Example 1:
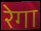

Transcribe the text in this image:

रेगा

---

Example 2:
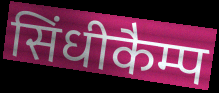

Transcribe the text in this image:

सिंधीकैम्प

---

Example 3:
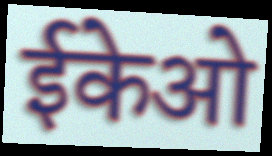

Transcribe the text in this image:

ईकेओ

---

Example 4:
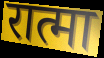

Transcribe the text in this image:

रात्मा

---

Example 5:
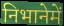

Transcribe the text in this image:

निभानेमें